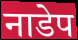
नाडेप